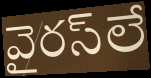
వైరస్‌లే